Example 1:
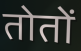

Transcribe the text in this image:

तोतों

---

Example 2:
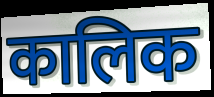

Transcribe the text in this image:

कालिक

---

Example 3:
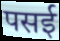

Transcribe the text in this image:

पसई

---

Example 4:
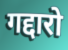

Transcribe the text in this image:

गद्दारो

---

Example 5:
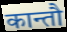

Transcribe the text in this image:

कान्तौ